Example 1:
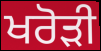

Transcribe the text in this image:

ਖਰੋੜੀ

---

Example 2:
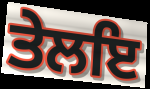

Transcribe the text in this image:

ਤੇਲਇ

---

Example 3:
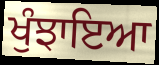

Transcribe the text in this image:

ਖੁੰਝਾਇਆ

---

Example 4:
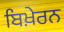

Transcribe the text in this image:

ਬਿਖ਼ੇਰਨ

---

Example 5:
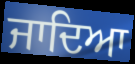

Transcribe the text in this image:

ਜਾਦਿਆ